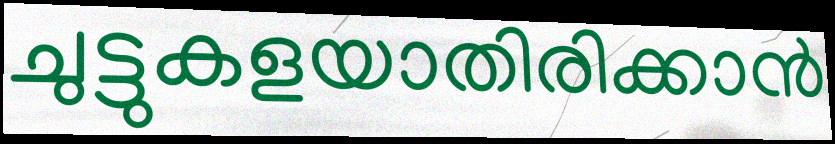
ചുട്ടുകളയാതിരിക്കാൻ